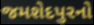
જમશેદપુરનો